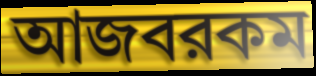
আজবরকম